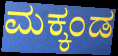
ಮಕ್ಕಂಡ